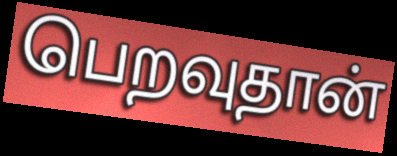
பெறவுதான்